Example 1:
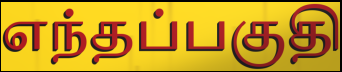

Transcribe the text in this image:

எந்தப்பகுதி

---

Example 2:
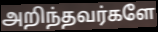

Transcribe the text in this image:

அறிந்தவர்களே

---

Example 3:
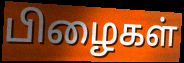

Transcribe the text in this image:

பிழைகள்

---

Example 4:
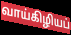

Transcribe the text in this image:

வாய்கிழியப்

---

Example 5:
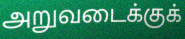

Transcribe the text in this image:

அறுவடைக்குக்